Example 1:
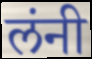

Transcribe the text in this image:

लंनी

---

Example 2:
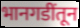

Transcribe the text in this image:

भानगडींतून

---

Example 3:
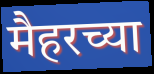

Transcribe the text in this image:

मैहरच्या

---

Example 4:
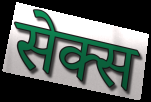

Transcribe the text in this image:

सेक्स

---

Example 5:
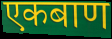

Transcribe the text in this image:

एकबाण